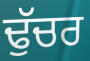
ਢੁੱਚਰ